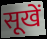
सूखें